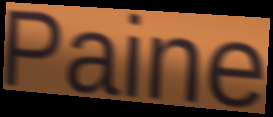
Paine